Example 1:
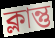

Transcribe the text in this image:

ক্লান্তু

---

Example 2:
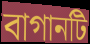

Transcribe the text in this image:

বাগানটি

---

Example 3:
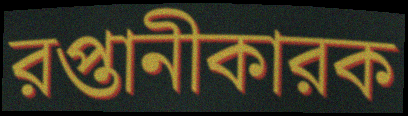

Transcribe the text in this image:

রপ্তানীকারক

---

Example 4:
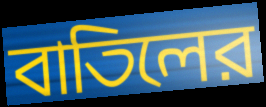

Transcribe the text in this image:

বাতিলের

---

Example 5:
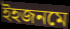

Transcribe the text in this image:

ইহজনমে